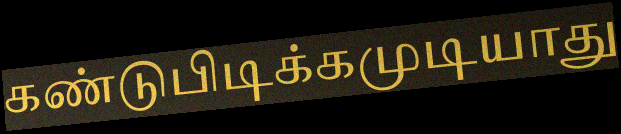
கண்டுபிடிக்கமுடியாது